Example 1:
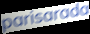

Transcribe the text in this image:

parisarada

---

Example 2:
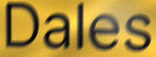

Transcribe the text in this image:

Dales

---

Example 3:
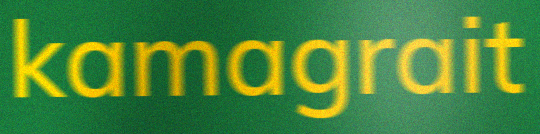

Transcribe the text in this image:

kamagrait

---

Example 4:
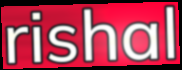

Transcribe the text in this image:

rishal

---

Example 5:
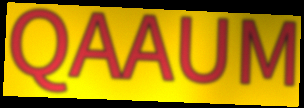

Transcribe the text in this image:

QAAUM